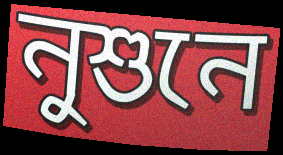
নুশুনে